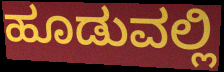
ಹೂಡುವಲ್ಲಿ